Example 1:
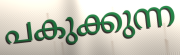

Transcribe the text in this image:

പകുക്കുന്ന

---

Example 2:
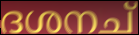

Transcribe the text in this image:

ദശനച്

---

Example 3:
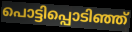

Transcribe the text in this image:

പൊട്ടിപ്പൊടിഞ്ഞ്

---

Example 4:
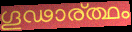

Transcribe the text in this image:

ഗൂഢാര്ത്ഥം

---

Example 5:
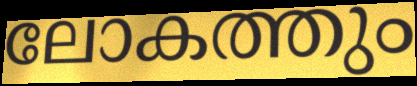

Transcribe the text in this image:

ലോകത്തും